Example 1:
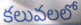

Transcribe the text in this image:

కలువలలో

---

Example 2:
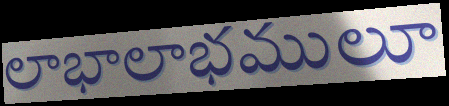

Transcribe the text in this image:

లాభాలాభములూ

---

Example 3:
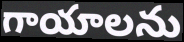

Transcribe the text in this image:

గాయాలను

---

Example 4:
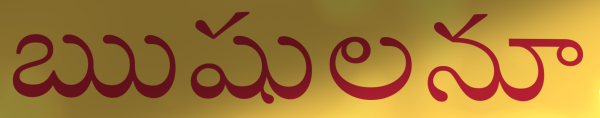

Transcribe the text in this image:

ఋషులనూ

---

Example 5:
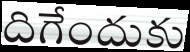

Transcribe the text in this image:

దిగేందుకు